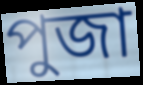
পুজা